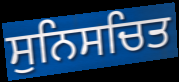
ਸੁਨਿਸਚਿਤ